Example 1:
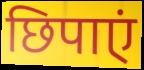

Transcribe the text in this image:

छिपाएं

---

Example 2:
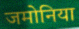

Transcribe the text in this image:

जमोनिया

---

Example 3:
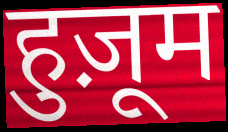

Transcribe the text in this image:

हुज़ूम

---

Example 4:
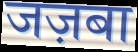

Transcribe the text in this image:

जज़बा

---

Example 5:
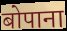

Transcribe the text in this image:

बोपाना